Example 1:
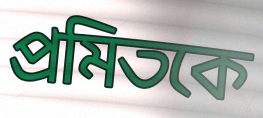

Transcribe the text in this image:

প্রমিতকে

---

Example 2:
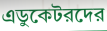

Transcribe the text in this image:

এডুকেটরদের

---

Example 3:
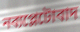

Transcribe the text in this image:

নব্যপ্লেটোবাদ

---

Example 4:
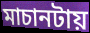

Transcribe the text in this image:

মাচানটায়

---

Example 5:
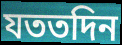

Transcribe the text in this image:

যততদিন